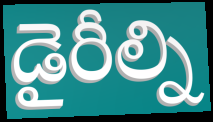
డైరీల్ని